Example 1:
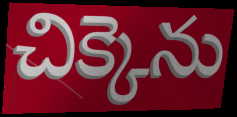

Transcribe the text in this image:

చిక్కెను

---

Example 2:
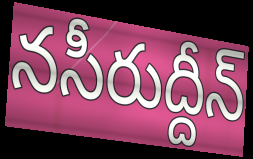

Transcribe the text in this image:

నసీరుద్దీన్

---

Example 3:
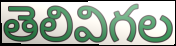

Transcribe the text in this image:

తెలివిగల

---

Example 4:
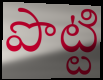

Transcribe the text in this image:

పొట్టి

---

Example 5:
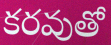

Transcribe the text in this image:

కరవుతో